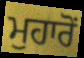
ਮੁਹਾਰੋਂ